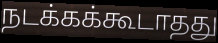
நடக்கக்கூடாதது